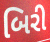
બિરી